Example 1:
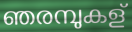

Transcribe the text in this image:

ഞരമ്പുകള്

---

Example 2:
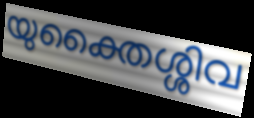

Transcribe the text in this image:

യുക്തൈശ്ശിവ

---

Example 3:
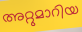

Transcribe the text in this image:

അറ്റുമാറിയ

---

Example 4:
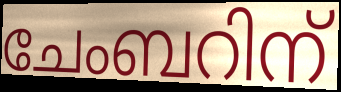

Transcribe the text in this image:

ചേംബറിന്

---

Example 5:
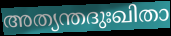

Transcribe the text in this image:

അത്യന്തദുഃഖിതാ